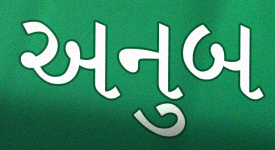
અનુબ